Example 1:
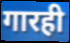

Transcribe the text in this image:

गारही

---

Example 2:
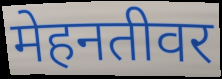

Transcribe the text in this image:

मेहनतीवर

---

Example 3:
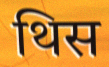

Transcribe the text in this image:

थिस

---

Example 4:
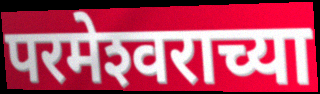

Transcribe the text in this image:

परमेश्‍वराच्या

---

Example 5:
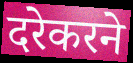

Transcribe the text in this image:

दरेकरने